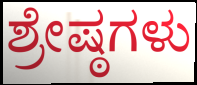
ಶ್ರೇಷ್ಠಗಳು